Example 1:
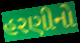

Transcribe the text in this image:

હરણીનો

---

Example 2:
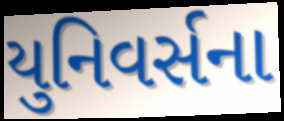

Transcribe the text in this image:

યુનિવર્સના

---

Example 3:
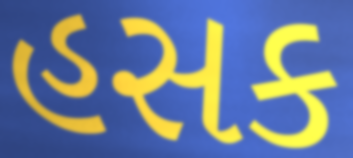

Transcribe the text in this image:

હસક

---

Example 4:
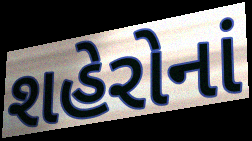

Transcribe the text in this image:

શહેરોનાં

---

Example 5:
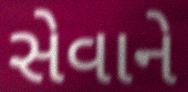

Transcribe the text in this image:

સેવાને